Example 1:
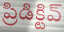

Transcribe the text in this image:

ప్రిడిక్టివ్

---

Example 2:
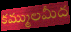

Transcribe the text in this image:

కమ్ములమీద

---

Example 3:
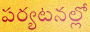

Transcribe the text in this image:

పర్యటనల్లో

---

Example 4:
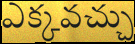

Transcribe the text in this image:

ఎక్కవచ్చు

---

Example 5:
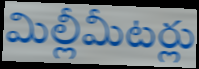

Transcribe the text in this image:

మిల్లీమీటర్లు